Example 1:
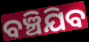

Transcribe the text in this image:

ବଞ୍ଚିଯିବ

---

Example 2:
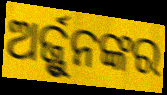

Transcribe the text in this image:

ଅର୍ଜ୍ଜୁନଙ୍କର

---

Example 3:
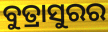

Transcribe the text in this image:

ବୁତ୍ରାସୁରର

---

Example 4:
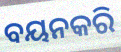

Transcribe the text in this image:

ବୟନକରି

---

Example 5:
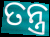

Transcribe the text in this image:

ତନ୍ତ୍ର